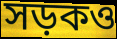
সড়কও